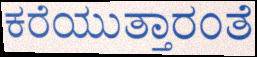
ಕರೆಯುತ್ತಾರಂತೆ